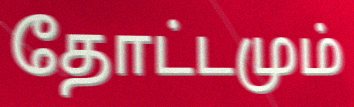
தோட்டமும்